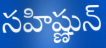
సహిష్ణున్